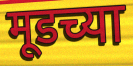
मूडच्या